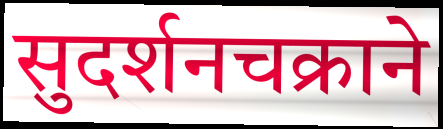
सुदर्शनचक्राने